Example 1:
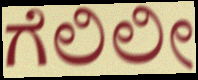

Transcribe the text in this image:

ಗೆಲಿಲೀ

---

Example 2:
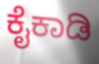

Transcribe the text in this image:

ಕೈಕಾಡಿ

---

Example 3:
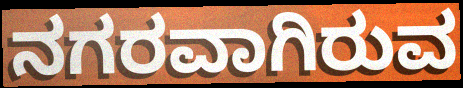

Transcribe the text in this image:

ನಗರವಾಗಿರುವ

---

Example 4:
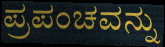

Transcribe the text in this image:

ಪ್ರಪಂಚವನ್ನು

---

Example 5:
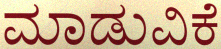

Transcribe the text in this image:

ಮಾಡುವಿಕೆ